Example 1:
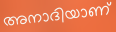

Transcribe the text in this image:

അനാദിയാണ്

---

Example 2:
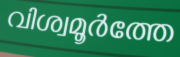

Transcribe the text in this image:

വിശ്വമൂർത്തേ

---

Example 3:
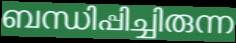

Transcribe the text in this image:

ബന്ധിപ്പിച്ചിരുന്ന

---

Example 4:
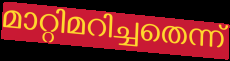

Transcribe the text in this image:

മാറ്റിമറിച്ചതെന്ന്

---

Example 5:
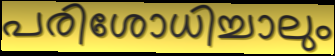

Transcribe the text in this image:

പരിശോധിച്ചാലും